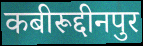
कबीरूद्दीनपुर